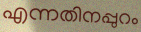
എന്നതിനപ്പുറം